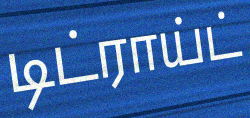
டிட்ராய்ட்